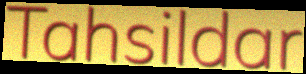
Tahsildar